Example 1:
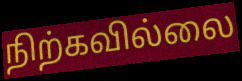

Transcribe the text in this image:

நிற்கவில்லை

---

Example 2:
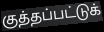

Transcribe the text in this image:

குத்தப்பட்டுக்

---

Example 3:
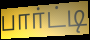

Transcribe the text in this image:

பார்ட்டி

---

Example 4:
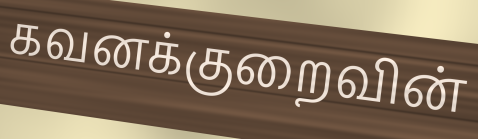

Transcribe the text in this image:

கவனக்குறைவின்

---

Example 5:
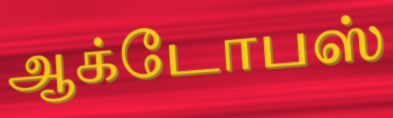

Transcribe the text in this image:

ஆக்டோபஸ்